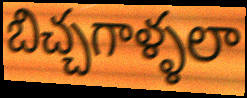
బిచ్చగాళ్ళలా